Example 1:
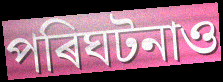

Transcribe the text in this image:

পৰিঘটনাও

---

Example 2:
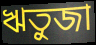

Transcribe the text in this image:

ঋতুজা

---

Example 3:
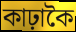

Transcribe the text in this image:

কাঢ়াকৈ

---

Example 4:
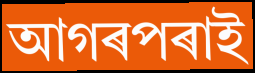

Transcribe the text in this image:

আগৰপৰাই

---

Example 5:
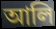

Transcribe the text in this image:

আলি